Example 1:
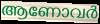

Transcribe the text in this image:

ആണോവർ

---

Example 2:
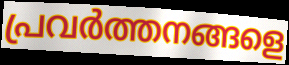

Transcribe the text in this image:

പ്രവർത്തനങ്ങളെ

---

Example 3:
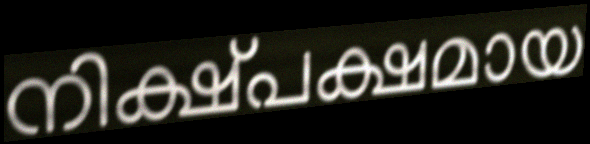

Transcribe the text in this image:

നിക്ഷ്പക്ഷമായ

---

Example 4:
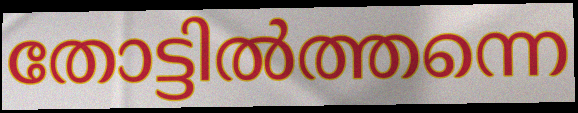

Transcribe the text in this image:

തോട്ടിൽത്തന്നെ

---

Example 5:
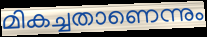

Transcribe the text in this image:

മികച്ചതാണെന്നും